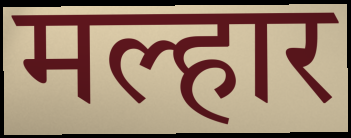
मल्हार